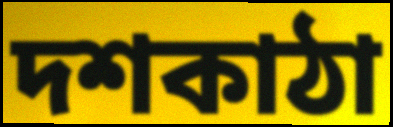
দশকাঠা